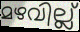
മഴവില്ല്